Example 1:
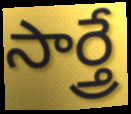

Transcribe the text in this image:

సార్త్రే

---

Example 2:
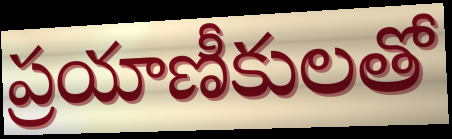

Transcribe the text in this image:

ప్రయాణీకులతో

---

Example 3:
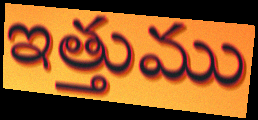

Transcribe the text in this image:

ఇత్తుము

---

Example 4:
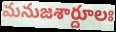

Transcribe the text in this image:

మనుజశార్దూలః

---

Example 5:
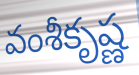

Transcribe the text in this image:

వంశీకృష్ణ